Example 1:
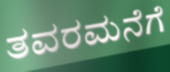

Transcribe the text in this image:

ತವರಮನೆಗೆ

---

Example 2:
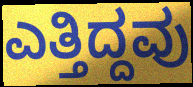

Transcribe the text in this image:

ಎತ್ತಿದ್ದವು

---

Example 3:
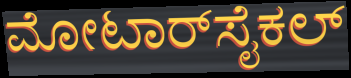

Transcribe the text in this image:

ಮೋಟಾರ್‌ಸೈಕಲ್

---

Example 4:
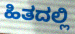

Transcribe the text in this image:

ಹಿತದಲ್ಲಿ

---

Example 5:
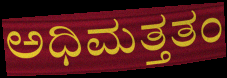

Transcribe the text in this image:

ಅಧಿಮತ್ತತಂ